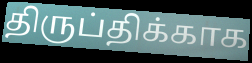
திருப்திக்காக